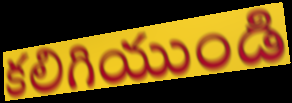
కలిగియుండి